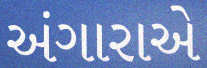
અંગારાએ